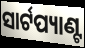
ସାର୍ଟପ୍ୟାଣ୍ଟ